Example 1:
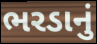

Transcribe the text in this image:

ભરડાનું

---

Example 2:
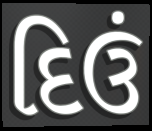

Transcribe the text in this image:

દિઉં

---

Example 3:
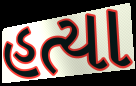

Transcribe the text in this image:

હત્યા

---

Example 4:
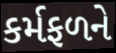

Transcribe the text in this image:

કર્મફળને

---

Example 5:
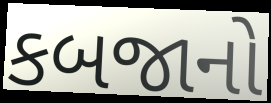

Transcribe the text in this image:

કબજાનો